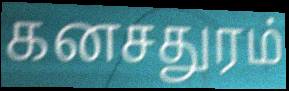
கனசதுரம்